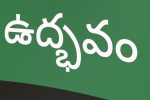
ఉద్భవం